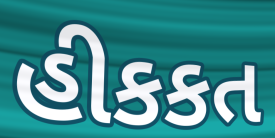
હીકકત